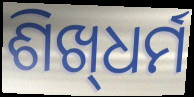
ଶିଖ୍‌ଧର୍ମ